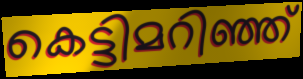
കെട്ടിമറിഞ്ഞ്